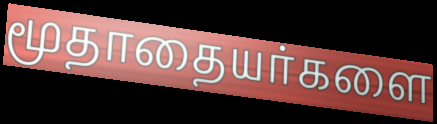
மூதாதையர்களை